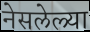
नेसलेल्या